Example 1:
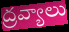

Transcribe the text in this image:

ద్రవ్యాలు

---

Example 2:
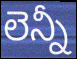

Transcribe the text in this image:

లెన్నీ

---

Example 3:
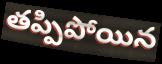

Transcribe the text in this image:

తప్పిపోయిన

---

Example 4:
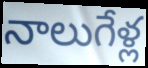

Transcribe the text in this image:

నాలుగేళ్ల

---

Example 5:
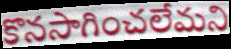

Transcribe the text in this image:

కొనసాగించలేమని